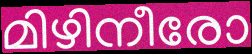
മിഴിനീരോ